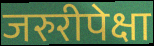
जरुरीपेक्षा